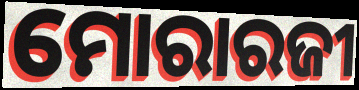
ମୋରାରଜୀ